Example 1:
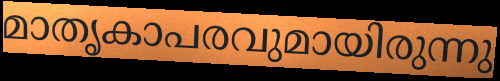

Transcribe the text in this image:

മാതൃകാപരവുമായിരുന്നു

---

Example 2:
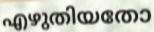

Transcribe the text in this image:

എഴുതിയതോ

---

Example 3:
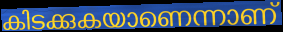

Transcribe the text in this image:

കിടക്കുകയാണെന്നാണ്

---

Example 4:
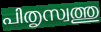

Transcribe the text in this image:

പിതൃസ്വത്തു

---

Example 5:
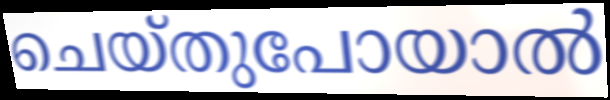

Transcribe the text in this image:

ചെയ്തുപോയാൽ